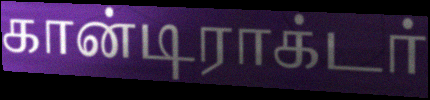
கான்டிராக்டர்